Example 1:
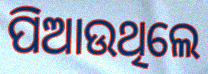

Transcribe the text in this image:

ପିଆଉଥିଲେ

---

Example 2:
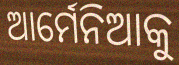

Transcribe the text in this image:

ଆର୍ମେନିଆକୁ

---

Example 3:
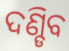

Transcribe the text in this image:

ଦଣ୍ଡିବ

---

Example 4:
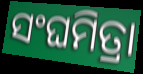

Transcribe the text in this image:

ସଂଘମିତ୍ରା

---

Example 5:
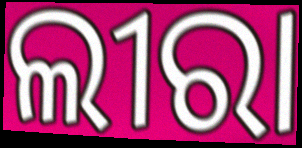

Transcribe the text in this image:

ଲୀରା